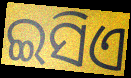
ଇସିଏ